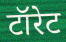
टॉरेट